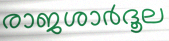
രാജശാർദൂല